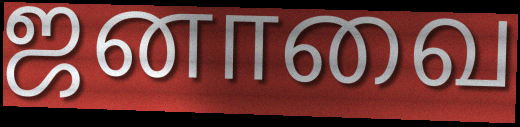
ஜனாவை